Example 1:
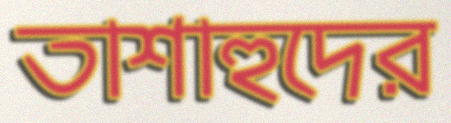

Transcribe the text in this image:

তাশাহুদের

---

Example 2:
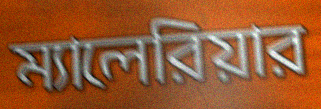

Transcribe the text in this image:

ম্যালেরিয়ার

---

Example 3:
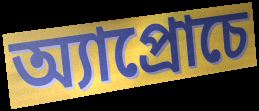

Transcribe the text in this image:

অ্যাপ্রোচে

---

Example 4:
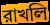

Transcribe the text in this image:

রাখলি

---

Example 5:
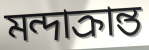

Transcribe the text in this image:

মন্দাক্রান্ত